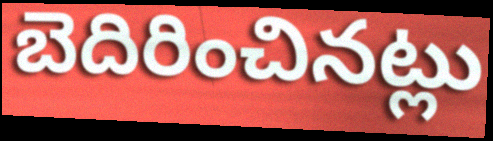
బెదిరించినట్లు